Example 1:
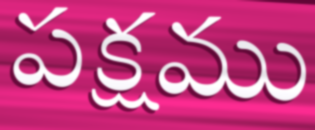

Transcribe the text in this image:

పక్షము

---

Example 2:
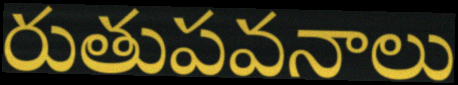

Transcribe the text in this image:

రుతుపవనాలు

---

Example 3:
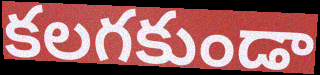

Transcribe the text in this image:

కలగకుండా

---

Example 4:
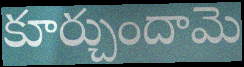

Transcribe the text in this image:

కూర్చుందామె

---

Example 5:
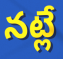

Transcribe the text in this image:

నట్లే